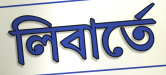
লিবার্তে